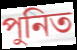
পুনিত